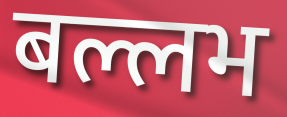
बल्लभ